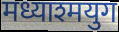
मध्याश्मयुग